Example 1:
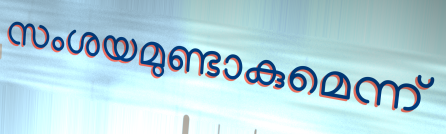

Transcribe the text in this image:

സംശയമുണ്ടാകുമെന്ന്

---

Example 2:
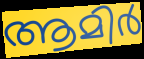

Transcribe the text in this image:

ആമിർ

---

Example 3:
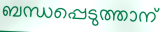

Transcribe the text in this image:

ബന്ധപ്പെടുത്താന്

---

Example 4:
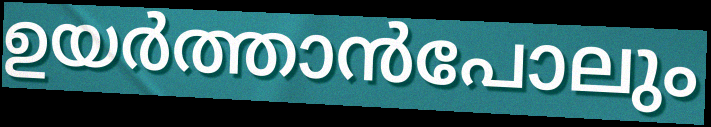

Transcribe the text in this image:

ഉയർത്താൻപോലും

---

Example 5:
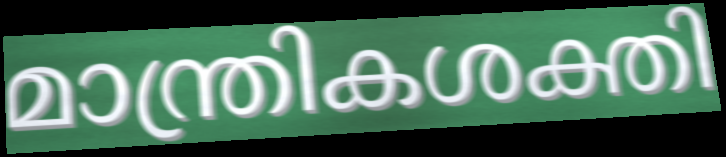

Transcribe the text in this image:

മാന്ത്രികശക്തി